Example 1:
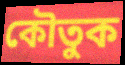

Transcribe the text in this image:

কৌতুক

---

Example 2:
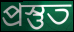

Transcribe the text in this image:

প্রস্তুত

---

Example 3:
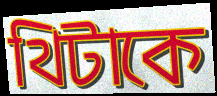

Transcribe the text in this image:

থিটাকে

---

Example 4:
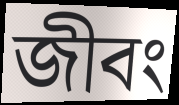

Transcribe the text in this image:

জীবং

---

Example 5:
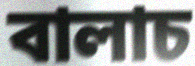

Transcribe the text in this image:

বালাচ